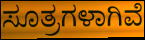
ಸೂತ್ರಗಳಾಗಿವೆ